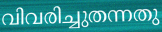
വിവരിച്ചുതന്നതു